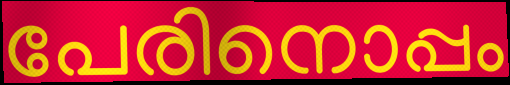
പേരിനൊപ്പം